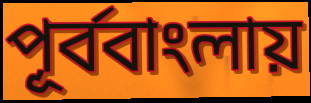
পূর্ববাংলায়